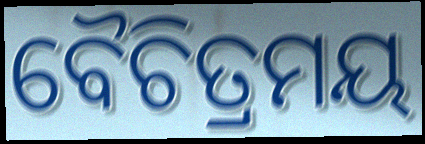
ବୈଚିତ୍ରମୟ